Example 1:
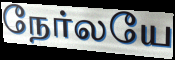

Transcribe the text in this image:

நேர்லயே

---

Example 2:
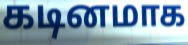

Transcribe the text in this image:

கடினமாக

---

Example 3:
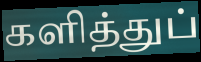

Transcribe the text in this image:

களித்துப்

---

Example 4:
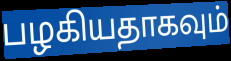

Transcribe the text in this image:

பழகியதாகவும்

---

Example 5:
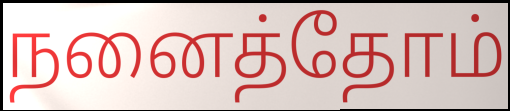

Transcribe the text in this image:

நனைத்தோம்